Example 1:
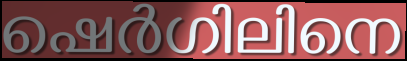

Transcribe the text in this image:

ഷെർഗിലിനെ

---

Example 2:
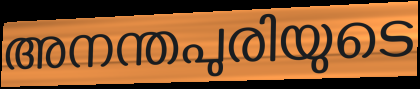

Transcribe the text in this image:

അനന്തപുരിയുടെ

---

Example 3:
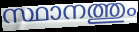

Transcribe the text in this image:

സ്ഥാനത്തും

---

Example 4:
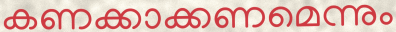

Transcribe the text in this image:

കണക്കാക്കണമെന്നും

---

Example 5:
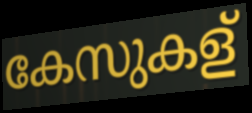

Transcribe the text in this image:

കേസുകള്